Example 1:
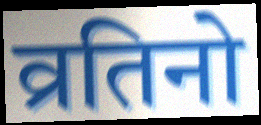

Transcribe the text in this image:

व्रतिनो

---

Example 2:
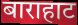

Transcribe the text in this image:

बाराहाट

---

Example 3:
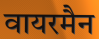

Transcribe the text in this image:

वायरमैन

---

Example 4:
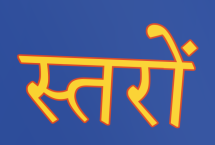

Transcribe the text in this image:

स्तरों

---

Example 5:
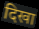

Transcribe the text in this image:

दिखा